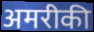
अमरीकी